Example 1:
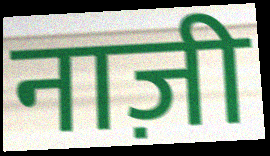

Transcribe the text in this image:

नाज़ी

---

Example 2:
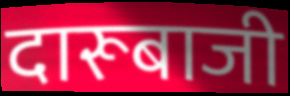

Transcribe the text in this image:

दारूबाजी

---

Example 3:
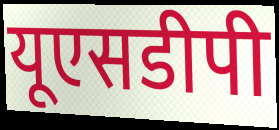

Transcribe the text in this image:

यूएसडीपी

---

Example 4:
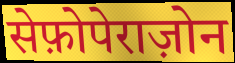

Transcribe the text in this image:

सेफ़ोपेराज़ोन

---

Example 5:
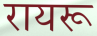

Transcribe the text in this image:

रायरू